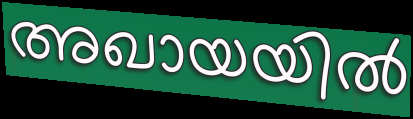
അഖായയിൽ